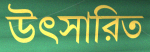
উৎসারিত